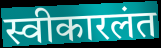
स्वीकारलंत